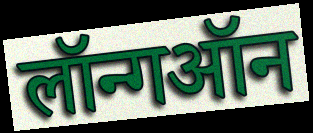
लॉन्गऑन